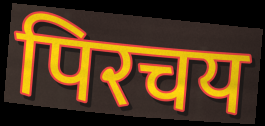
पिरचय